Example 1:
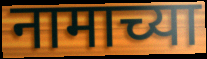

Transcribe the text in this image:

नामाच्या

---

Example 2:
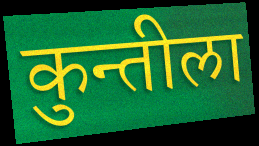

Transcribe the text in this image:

कुन्तीला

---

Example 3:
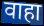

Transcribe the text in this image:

वाहा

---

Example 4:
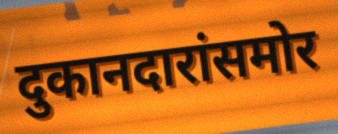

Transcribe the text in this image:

दुकानदारांसमोर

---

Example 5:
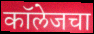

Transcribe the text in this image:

कॉलेजचा